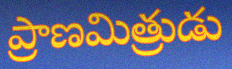
ప్రాణమిత్రుడు